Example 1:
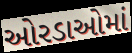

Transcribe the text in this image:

ઓરડાઓમાં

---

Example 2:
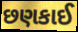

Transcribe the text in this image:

છણકાઈ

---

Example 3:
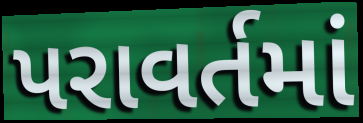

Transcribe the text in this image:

પરાવર્તમાં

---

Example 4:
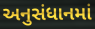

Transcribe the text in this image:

અનુસંધાનમાં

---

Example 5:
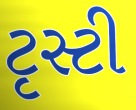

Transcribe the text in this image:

ટૃસ્ટી